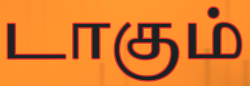
டாகும்